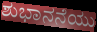
ಶುಭಾನನೆಯು